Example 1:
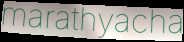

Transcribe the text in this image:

marathyacha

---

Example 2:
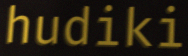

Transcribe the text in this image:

hudiki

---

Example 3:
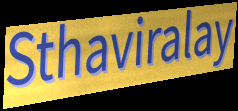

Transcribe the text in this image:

Sthaviralay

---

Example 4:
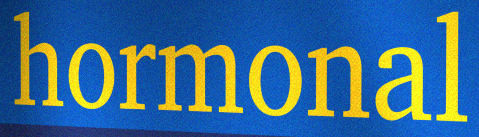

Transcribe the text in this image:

hormonal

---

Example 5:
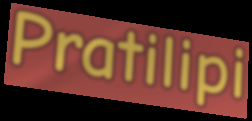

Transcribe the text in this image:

Pratilipi